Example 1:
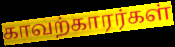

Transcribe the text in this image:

காவற்காரர்கள்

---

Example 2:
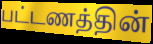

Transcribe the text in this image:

பட்டணத்தின்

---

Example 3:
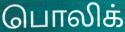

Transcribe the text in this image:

பொலிக்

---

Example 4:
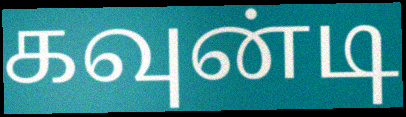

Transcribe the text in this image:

கவுன்டி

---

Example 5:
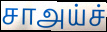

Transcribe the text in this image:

சாஅய்ச்